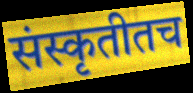
संस्कृतीतच